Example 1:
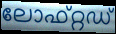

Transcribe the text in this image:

ലോഫ്റ്റഡ്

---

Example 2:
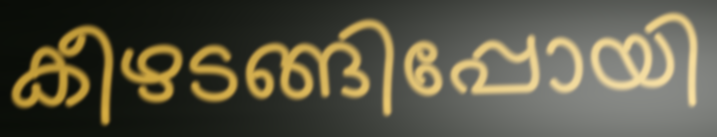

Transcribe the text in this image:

കീഴടങ്ങിപ്പോയി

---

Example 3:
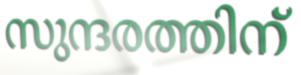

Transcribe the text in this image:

സുന്ദരത്തിന്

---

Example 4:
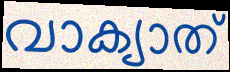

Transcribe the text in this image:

വാക്യാത്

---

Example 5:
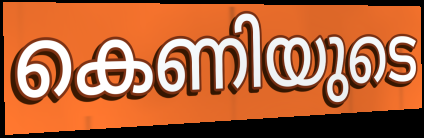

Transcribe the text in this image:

കെണിയുടെ